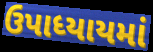
ઉપાધ્યાયમાં